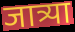
जात्र्या